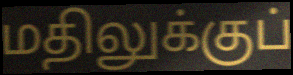
மதிலுக்குப்